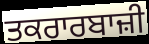
ਤਕਰਾਰਬਾਜ਼ੀ